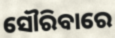
ସୌରିବାରେ